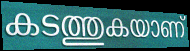
കടത്തുകയാണ്